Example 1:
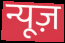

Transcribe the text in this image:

न्यूज़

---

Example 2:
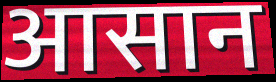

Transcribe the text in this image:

आसान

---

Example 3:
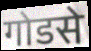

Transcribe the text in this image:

गोडसे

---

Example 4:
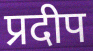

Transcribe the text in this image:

प्रदीप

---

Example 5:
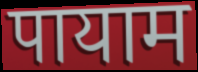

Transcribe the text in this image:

पायाम